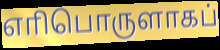
எரிபொருளாகப்